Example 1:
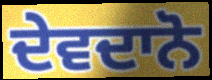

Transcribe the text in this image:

ਦੇਵਦਾਨੋ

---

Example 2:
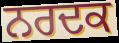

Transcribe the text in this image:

ਨਰਦਕ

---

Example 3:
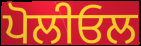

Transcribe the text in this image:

ਪੋਲੀਓਲ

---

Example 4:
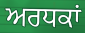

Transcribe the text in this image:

ਅਰਧਕਾਂ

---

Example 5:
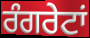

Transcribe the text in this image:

ਰੰਗਰੇਟਾਂ